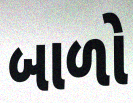
બાળો